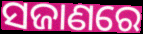
ସଜାଣରେ